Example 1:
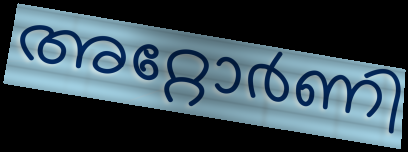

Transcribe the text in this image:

അറ്റോർണി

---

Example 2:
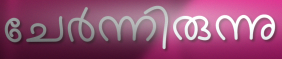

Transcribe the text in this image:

ചേർന്നിരുന്നു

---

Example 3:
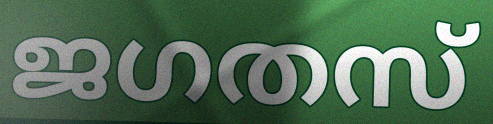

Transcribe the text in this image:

ജഗതസ്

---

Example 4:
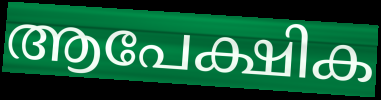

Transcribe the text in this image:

ആപേക്ഷിക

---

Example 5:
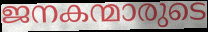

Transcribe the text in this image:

ജനകന്മാരുടെ